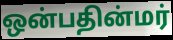
ஒன்பதின்மர்